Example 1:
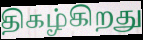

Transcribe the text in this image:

திகழ்கிறது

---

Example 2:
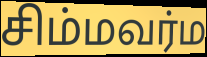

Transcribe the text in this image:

சிம்மவர்ம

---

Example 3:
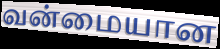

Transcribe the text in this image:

வன்மையான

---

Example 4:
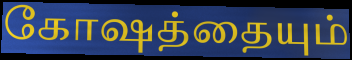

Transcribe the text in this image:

கோஷத்தையும்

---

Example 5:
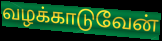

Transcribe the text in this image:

வழக்காடுவேன்